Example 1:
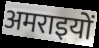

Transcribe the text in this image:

अमराइयों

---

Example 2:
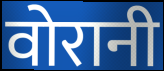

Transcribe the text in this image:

वोरानी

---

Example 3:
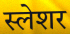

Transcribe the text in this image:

स्लेशर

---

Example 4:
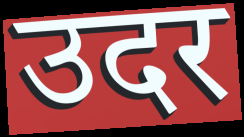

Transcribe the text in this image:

उदर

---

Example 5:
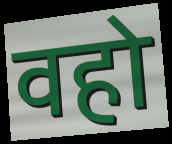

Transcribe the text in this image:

वहो